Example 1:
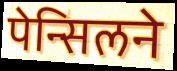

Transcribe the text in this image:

पेन्सिलने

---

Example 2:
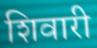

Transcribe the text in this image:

शिवारी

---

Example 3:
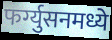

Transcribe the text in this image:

फर्ग्युसनमध्ये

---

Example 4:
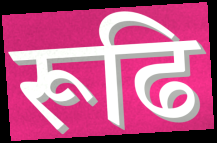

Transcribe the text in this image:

रूढि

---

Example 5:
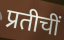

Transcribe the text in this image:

प्रतीचीं